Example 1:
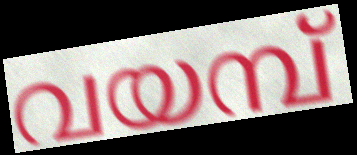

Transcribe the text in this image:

വയമ്പ്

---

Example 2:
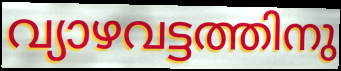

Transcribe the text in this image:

വ്യാഴവട്ടത്തിനു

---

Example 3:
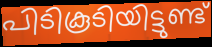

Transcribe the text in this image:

പിടികൂടിയിട്ടുണ്ട്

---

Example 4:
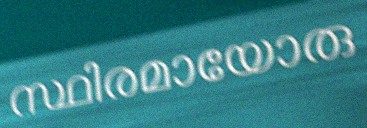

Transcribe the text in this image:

സ്ഥിരമായോരു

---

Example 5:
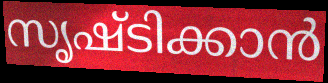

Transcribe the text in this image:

സൃഷ്ടിക്കാൻ